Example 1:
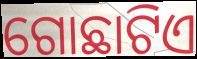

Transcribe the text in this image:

ଗୋଛାଟିଏ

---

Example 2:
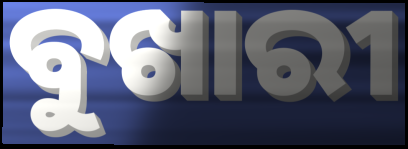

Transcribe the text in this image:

ବୁଖାରୀ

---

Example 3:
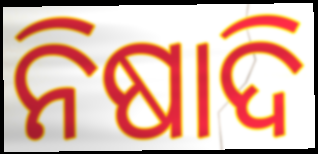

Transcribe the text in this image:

ନିଷାଦି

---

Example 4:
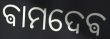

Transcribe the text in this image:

ଵାମଦେଵ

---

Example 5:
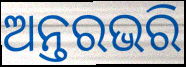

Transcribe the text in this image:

ଅନ୍ତରଭରି